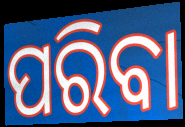
ପରିବା